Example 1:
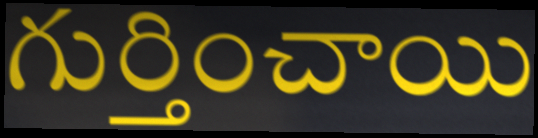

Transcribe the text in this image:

గుర్తించాయి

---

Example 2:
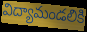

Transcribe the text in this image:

విద్యామండలికి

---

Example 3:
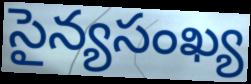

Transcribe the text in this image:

సైన్యసంఖ్య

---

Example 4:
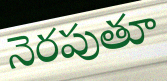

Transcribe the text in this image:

నెరపుతూ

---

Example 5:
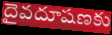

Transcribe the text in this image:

దైవదూషణకు